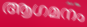
ആഗമനം